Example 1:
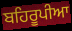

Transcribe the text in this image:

ਬਹਿਰੂਪੀਆ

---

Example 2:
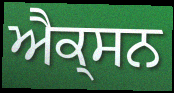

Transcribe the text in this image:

ਐਕ੍ਸਨ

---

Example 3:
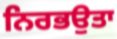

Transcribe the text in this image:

ਨਿਰਭਉਤਾ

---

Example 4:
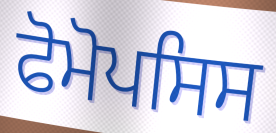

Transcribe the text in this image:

ਫੋਮੋਪਸਿਸ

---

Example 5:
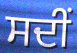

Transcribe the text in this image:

ਸਦੀਂ